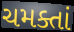
ચમક્તાં